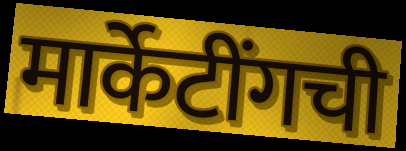
मार्केटींगची